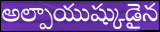
అల్పాయుష్కుడైన